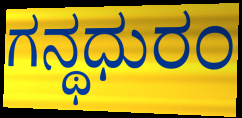
ಗನ್ಥಧುರಂ